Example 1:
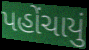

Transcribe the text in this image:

પહોંચાયું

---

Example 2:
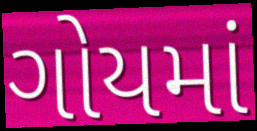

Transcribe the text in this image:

ગોયમાં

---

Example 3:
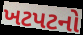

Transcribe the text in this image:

ખટપટનો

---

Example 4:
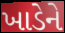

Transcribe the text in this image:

ખાડેને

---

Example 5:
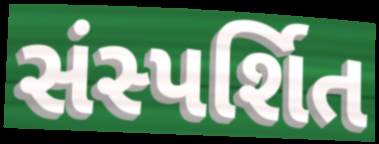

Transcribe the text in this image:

સંસ્પર્શિત